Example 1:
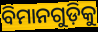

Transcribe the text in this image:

ବିମାନଗୁଡ଼ିକୁ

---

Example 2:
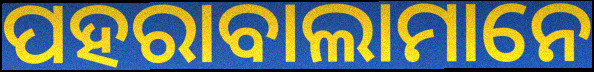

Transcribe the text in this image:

ପହରାବାଲାମାନେ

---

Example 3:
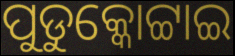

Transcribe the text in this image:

ପୁଡୁକ୍କୋଟ୍ଟାଇ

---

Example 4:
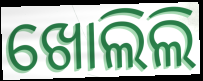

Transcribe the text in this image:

ଖୋଲିଲି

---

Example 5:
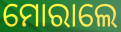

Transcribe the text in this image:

ମୋରାଲେ